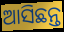
ଆସିଛନ୍ତ